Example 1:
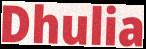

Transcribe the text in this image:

Dhulia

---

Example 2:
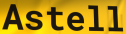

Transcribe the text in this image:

Astell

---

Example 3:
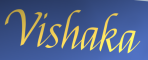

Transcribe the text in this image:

Vishaka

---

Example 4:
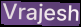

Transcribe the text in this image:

Vrajesh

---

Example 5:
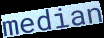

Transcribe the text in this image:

median